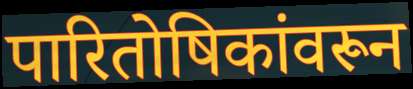
पारितोषिकांवरून